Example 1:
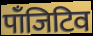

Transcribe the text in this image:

पाँजिटिव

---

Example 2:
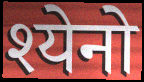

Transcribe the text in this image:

श्येनो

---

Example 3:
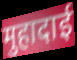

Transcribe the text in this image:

मुहादाई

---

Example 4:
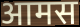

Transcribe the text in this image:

आमस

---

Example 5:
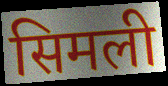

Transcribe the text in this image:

सिमली